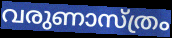
വരുണാസ്ത്രം